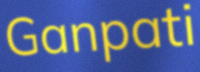
Ganpati